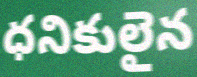
ధనికులైన